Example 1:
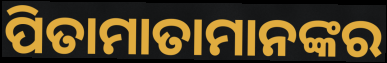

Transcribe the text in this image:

ପିତାମାତାମାନଙ୍କର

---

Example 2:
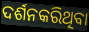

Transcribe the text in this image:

ଦର୍ଶନକରିଥିବା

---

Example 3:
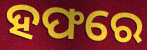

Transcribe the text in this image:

ହଫରେ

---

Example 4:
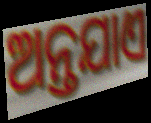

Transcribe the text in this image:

ଅନ୍ତଯାଏ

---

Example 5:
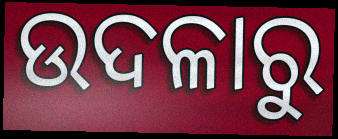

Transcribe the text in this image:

ଉଦଳାରୁ